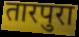
तारपुरा